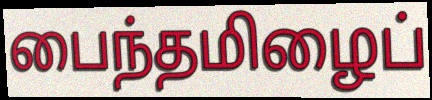
பைந்தமிழைப்